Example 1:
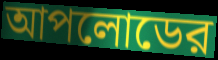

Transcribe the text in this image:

আপলোডের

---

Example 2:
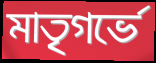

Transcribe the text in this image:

মাতৃগর্ভে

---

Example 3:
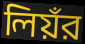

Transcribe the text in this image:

লিয়ঁর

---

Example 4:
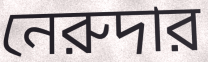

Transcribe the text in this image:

নেরুদার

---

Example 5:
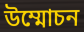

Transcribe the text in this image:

উম্মোচন